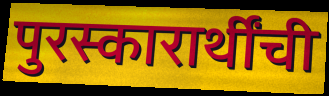
पुरस्कारार्थींची